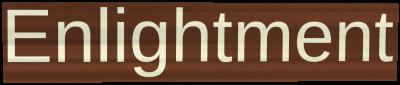
Enlightment